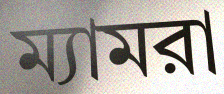
ম্যামরা